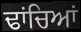
ਢਾਂਚਿਆਂ